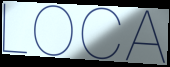
LOCA